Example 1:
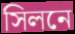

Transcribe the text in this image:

সিলনে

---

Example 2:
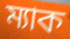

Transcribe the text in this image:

ম্যাক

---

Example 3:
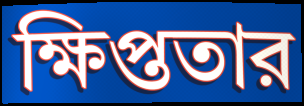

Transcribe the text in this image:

ক্ষিপ্ততার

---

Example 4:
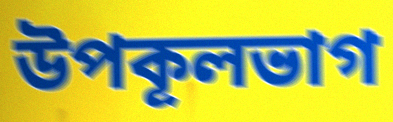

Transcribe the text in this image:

উপকূলভাগ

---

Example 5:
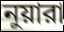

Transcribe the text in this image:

নুয়ারা